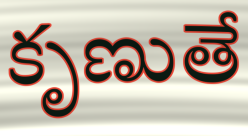
కృణుతే